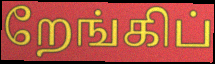
றேங்கிப்